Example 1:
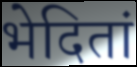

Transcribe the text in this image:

भेदितां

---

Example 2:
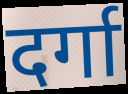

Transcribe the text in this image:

दर्गा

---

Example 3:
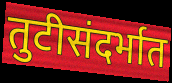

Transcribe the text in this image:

तुटीसंदर्भात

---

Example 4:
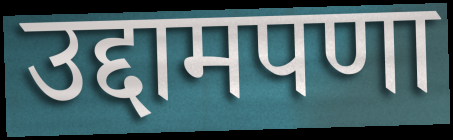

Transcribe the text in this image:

उद्दामपणा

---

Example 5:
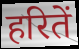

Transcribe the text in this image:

हरितें